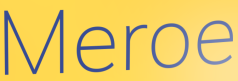
Meroe